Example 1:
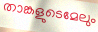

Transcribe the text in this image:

താങ്കളുടെമേലും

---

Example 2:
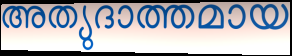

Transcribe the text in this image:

അത്യുദാത്തമായ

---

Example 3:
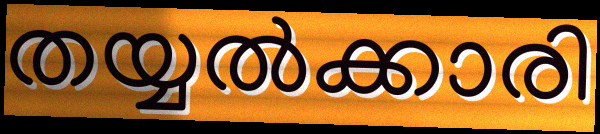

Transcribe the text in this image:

തയ്യൽക്കാരി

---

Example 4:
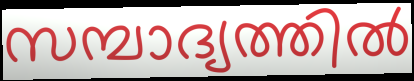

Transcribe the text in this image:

സമ്പാദ്യത്തിൽ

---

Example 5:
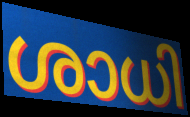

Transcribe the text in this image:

ശാധി